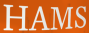
HAMS